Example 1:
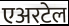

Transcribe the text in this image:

एअरटेल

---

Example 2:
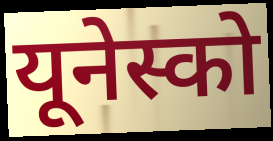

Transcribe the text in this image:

यूनेस्को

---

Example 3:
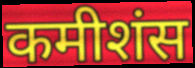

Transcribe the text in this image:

कमीशंस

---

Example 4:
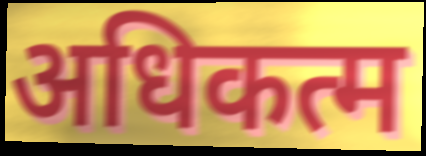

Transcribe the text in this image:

अधिकत्म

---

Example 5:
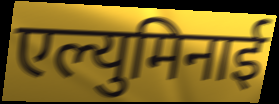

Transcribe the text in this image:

एल्युमिनाई